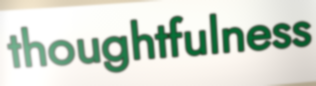
thoughtfulness